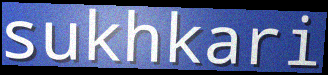
sukhkari